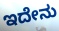
ಇದೇನು